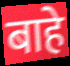
बाहे